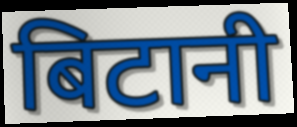
बिटानी